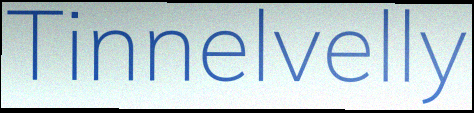
Tinnelvelly